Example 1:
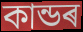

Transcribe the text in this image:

কান্ডৰ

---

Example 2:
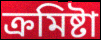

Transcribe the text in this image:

ক্ৰমিষ্টা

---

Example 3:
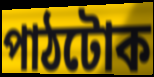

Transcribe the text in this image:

পাঠটোক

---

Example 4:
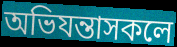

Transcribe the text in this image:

অভিযন্তাসকলে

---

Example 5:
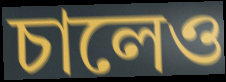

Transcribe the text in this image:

চালেও